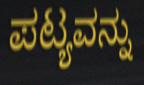
ಪಟ್ಯವನ್ನು